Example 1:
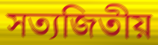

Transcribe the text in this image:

সত্যজিতীয়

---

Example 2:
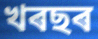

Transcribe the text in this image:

খৰছৰ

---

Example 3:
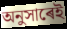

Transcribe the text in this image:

অনুসাৰেই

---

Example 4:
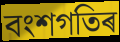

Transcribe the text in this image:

বংশগতিৰ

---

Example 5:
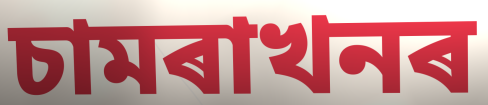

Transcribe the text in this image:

চামৰাখনৰ